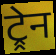
ट्र्रेन